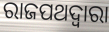
ରାଜପଥଦ୍ୱାରା